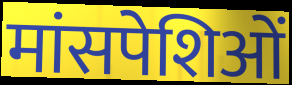
मांसपेशिओं